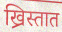
ख्रिस्तात